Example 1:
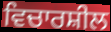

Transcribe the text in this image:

ਵਿਚਾਰਸ਼ੀਲ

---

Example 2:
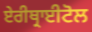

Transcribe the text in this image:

ਏਰੀਥ੍ਰਾਈਟੋਲ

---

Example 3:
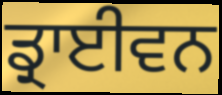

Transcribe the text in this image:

ਡ੍ਰਾਈਵਨ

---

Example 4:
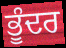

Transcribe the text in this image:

ਭੂੰਦਰ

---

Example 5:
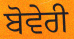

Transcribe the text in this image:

ਬੋਵੇਰੀ